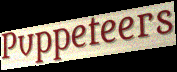
Puppeteers